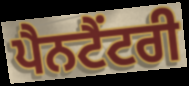
ਪੈਨਟੈਂਟਰੀ